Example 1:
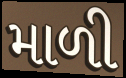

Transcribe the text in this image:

માળી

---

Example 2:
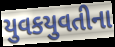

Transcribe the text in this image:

યુવકયુવતીના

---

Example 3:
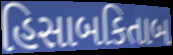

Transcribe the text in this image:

હિસાબકિતાબ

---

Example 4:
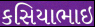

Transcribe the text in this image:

કસિયાભાઇ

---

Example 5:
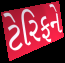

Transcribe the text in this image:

ટેરિફને